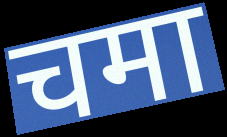
चमा